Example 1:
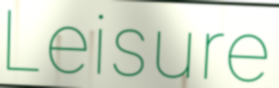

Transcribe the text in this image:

Leisure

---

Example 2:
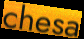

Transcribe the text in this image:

chesa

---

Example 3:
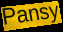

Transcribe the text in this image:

Pansy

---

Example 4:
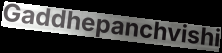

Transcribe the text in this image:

Gaddhepanchvishi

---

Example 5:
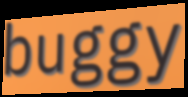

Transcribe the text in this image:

buggy